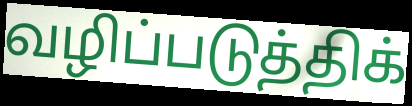
வழிப்படுத்திக்